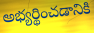
అభ్యర్థించడానికి